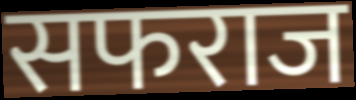
सफराज